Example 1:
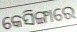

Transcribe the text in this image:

କେସିଙ୍ଗାରେ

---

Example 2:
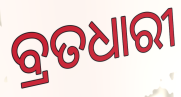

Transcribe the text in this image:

ବ୍ରତଧାରୀ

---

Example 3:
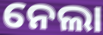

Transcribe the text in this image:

ନେଲା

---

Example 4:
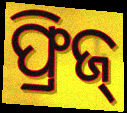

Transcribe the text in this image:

ଫ୍ରିଜ୍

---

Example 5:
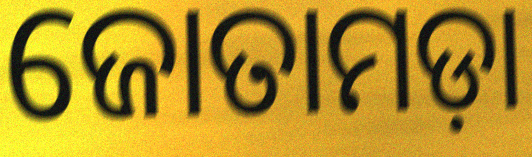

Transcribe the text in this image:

ଜୋତାମଡ଼ା